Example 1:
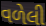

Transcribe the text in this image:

વળેલી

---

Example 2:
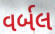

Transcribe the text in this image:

વર્બલ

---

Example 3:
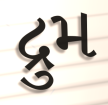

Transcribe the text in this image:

દ્રુમ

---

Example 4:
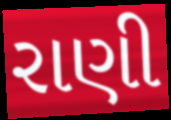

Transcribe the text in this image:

રાણી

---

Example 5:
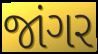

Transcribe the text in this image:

જાંગર